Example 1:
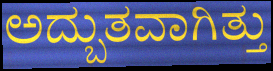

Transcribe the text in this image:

ಅದ್ಬುತವಾಗಿತ್ತು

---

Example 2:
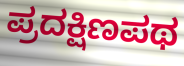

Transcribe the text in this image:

ಪ್ರದಕ್ಷಿಣಪಥ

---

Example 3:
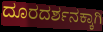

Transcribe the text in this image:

ದೂರದರ್ಶನಕ್ಕಾಗಿ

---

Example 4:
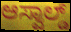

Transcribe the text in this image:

ಆಸ್ವಾಲ್ಡ್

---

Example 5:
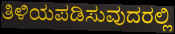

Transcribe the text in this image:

ತಿಳಿಯಪಡಿಸುವುದರಲ್ಲಿ